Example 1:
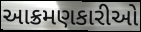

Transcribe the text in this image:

આક્રમણકારીઓ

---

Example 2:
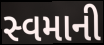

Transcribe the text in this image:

સ્વમાની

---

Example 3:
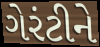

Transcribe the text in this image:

ગેરંટીને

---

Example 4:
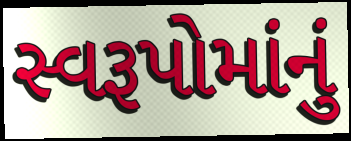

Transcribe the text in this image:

સ્વરૂપોમાંનું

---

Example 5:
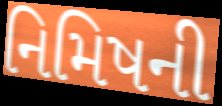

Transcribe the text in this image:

નિમિષની